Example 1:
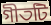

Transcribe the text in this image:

গীতটি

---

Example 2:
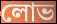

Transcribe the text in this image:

লোভ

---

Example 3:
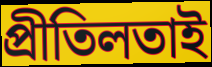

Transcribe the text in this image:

প্ৰীতিলতাই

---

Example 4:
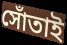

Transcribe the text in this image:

সোঁতাই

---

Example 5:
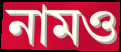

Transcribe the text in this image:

নামও